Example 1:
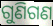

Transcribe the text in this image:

ଗୁଣିଗଣ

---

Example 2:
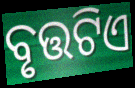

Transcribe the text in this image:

ବୃତ୍ତଟିଏ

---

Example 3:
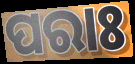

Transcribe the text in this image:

ପରାଃ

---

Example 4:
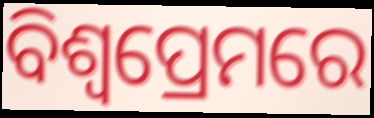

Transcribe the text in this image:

ବିଶ୍ୱପ୍ରେମରେ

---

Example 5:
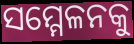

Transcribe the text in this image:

ସମ୍ମେଳନକୁ